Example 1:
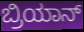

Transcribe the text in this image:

ಬ್ರಿಯಾನ್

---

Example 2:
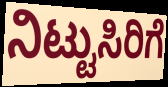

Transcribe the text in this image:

ನಿಟ್ಟುಸಿರಿಗೆ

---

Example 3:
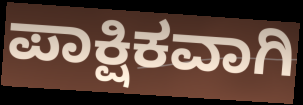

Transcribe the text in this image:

ಪಾಕ್ಷಿಕವಾಗಿ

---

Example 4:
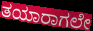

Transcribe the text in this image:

ತಯಾರಾಗಲೇ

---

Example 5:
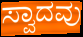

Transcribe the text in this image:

ಸ್ವಾದವು